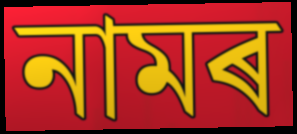
নামৰ